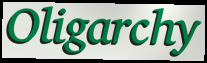
Oligarchy